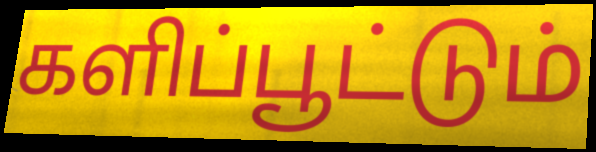
களிப்பூட்டும்